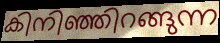
കിനിഞ്ഞിറങ്ങുന്ന